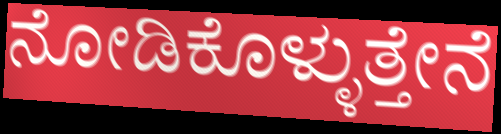
ನೋಡಿಕೊಳ್ಳುತ್ತೇನೆ